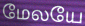
மேலயே